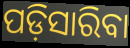
ପଡ଼ିସାରିବା